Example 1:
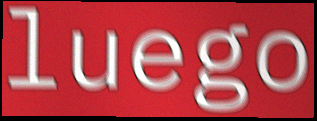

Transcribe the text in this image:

luego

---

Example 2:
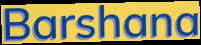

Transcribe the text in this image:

Barshana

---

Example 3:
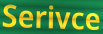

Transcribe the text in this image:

Serivce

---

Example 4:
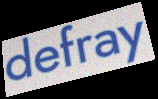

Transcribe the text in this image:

defray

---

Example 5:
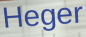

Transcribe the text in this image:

Heger